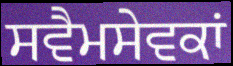
ਸਵੈਮਸੇਵਕਾਂ